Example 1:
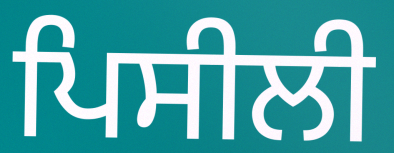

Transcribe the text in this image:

ਪਿਸੀਲੀ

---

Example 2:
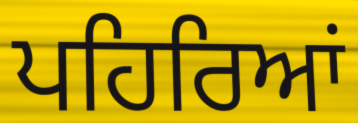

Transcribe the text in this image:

ਪਹਿਰਿਆਂ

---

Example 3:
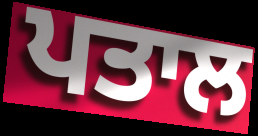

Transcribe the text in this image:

ਪਤਾਲ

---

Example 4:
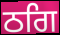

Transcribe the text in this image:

ਠਗਿ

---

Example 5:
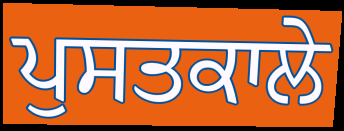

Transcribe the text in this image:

ਪੁਸਤਕਾਲੇ